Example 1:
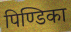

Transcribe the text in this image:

पिण्डिका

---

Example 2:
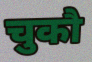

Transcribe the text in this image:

चुकौ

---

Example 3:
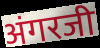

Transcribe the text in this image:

अंगरजी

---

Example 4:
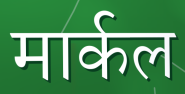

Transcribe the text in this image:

मार्कल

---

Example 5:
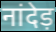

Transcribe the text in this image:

नांदेड़